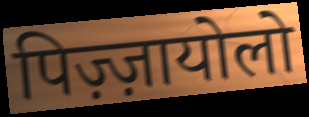
पिज़्ज़ायोलो